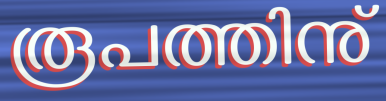
രൂപത്തിനു്